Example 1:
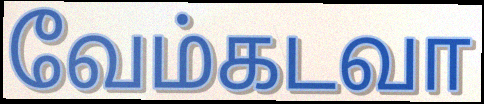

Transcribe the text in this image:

வேம்கடவா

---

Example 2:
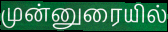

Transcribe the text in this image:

முன்னுரையில்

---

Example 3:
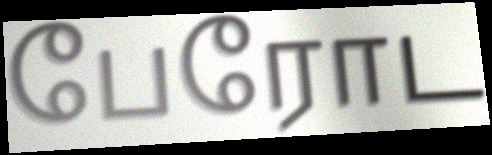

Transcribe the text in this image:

பேரோட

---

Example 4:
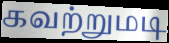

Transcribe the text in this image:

கவற்றுமடி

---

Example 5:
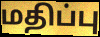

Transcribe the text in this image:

மதிப்பு